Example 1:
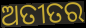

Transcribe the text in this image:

ଅତୀତର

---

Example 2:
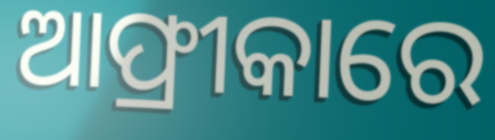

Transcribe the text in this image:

ଆଫ୍ରୀକାରେ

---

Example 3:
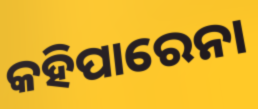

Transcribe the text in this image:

କହିପାରେନା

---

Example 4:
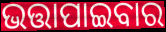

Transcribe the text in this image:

ଭତ୍ତାପାଇବାର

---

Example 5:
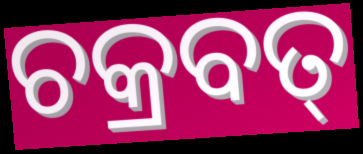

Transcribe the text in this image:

ଚକ୍ରବତ୍